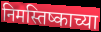
निमस्तिष्काच्या